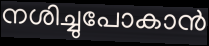
നശിച്ചുപോകാൻ